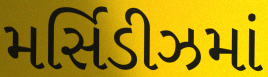
મર્સિડીઝમાં